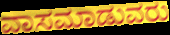
ವಾಸಮಾಡುವರು